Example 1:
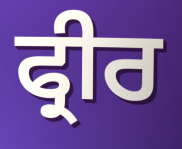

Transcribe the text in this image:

ਫ੍ਰੀਰ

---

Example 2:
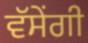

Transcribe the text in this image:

ਵੱਸੇਂਗੀ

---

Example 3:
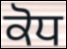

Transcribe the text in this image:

ਕੋਧ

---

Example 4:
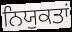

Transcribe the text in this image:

ਨਿਯੁਕਤਾਂ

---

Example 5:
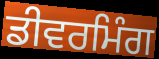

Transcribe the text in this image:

ਡੀਵਰਮਿੰਗ